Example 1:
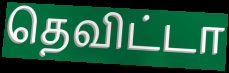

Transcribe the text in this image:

தெவிட்டா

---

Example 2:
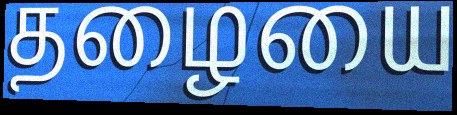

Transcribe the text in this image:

தழையை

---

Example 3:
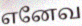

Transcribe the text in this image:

எனேவ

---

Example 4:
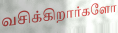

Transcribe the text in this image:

வசிக்கிறார்களோ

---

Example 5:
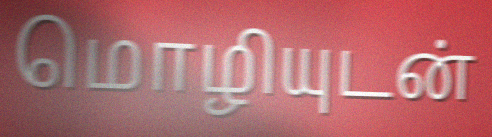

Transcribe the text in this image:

மொழியுடன்